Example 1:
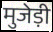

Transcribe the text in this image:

मुजेड़ी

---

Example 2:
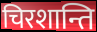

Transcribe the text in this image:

चिरशान्ति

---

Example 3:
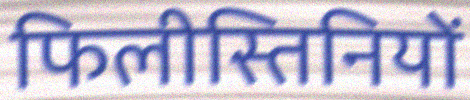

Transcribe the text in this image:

फिलीस्तिनियों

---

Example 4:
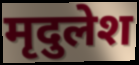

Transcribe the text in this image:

मृदुलेश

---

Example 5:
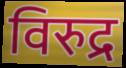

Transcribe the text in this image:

विरुद्र